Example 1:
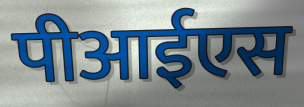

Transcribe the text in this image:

पीआईएस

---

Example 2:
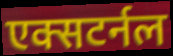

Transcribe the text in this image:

एक्सटर्नल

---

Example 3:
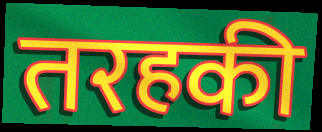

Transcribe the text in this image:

तरहकी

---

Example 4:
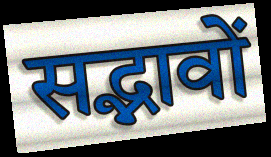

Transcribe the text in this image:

सद्भावों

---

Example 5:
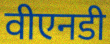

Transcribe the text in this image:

वीएनडी